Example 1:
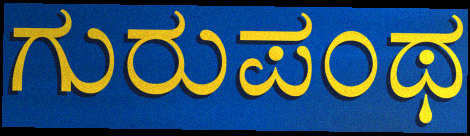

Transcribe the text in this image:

ಗುರುಪಂಥ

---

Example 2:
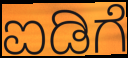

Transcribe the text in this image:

ಐಡಿಗೆ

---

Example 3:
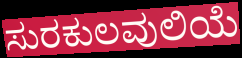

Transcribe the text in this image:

ಸುರಕುಲವುಲಿಯೆ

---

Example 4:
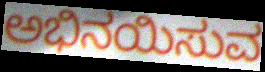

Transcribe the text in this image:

ಅಭಿನಯಿಸುವ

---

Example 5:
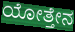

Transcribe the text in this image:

ಯೋತ್ತೇನ